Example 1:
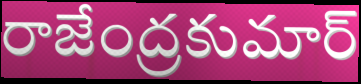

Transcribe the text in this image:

రాజేంద్రకుమార్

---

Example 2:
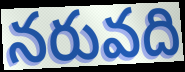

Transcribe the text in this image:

నరువది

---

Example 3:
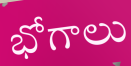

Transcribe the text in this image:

భోగాలు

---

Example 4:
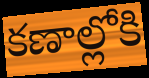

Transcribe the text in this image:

కణాల్లోకి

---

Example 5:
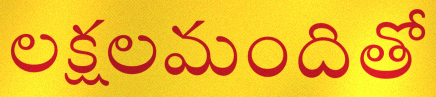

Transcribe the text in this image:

లక్షలమందితో